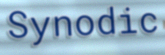
Synodic